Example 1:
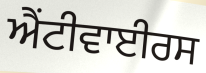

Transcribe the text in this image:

ਐਂਟੀਵਾਈਰਸ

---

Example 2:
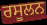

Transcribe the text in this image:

ਰਸੂਲਨ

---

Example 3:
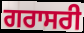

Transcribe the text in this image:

ਗਰਾਸਰੀ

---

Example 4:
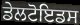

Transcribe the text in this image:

ਡੇਲਟੋਇਡਸ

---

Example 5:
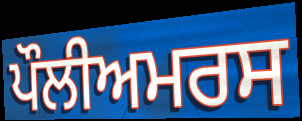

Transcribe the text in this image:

ਪੌਲੀਅਮਰਸ